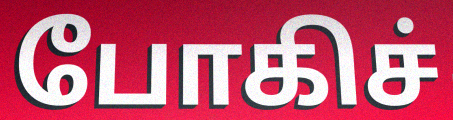
போகிச்